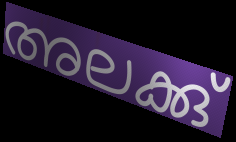
അലക്കു്